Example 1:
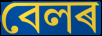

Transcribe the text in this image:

বেলৰ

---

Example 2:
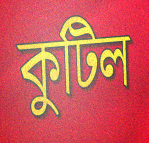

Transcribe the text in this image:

কুটিল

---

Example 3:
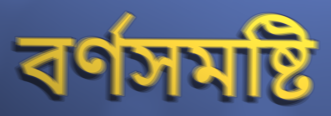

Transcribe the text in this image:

বৰ্ণসমষ্টি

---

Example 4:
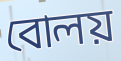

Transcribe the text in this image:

বোলয়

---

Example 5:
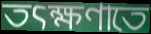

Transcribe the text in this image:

তৎক্ষণাতে